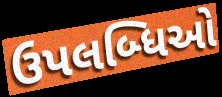
ઉપલબ્ધિઓ